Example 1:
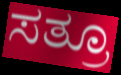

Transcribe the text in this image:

ಸತ್ರೂ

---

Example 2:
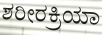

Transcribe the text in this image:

ಶರೀರಕ್ರಿಯಾ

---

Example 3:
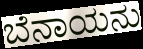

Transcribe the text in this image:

ಬೆನಾಯನು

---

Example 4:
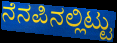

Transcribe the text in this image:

ನೆನಪಿನಲ್ಲಿಟ್ಟು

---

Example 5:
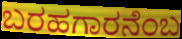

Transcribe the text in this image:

ಬರಹಗಾರನೆಂಬ